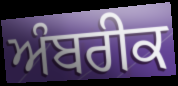
ਅੰਬਰੀਕ